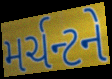
મર્ચન્ટને